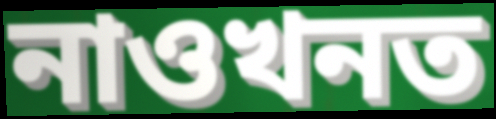
নাওখনত